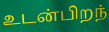
உடன்பிறந்